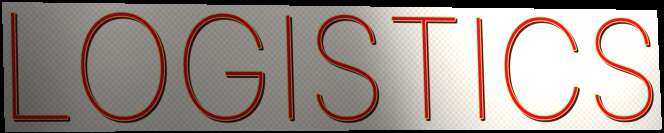
LOGISTICS